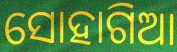
ସୋହାଗିଆ